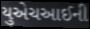
યુએચઆઈની